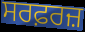
ਸਰਫ਼ਰਜ਼